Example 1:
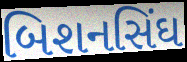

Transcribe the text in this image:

બિશનસિંઘ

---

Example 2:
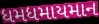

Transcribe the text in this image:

ધમધમાયમાન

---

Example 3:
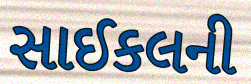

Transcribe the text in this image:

સાઈકલની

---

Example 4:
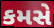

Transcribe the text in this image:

કમસે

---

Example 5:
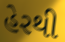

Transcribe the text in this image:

હેરથી